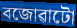
বজোৱাটো